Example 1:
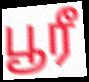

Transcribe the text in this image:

பூரீ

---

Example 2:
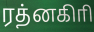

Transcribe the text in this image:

ரத்னகிரி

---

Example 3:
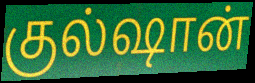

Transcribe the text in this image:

குல்ஷான்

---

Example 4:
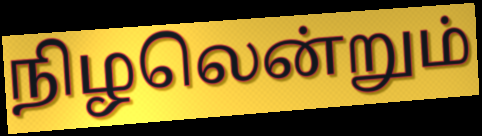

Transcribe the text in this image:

நிழலென்றும்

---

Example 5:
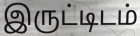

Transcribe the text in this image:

இருட்டிடம்